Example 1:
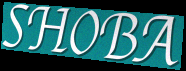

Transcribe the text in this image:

SHOBA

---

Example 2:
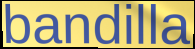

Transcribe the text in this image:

bandilla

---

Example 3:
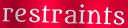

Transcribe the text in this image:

restraints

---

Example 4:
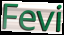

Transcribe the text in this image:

Fevi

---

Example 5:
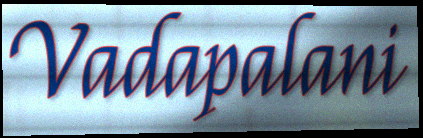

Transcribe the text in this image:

Vadapalani